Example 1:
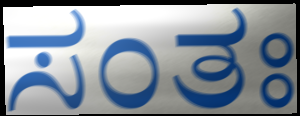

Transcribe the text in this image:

ಸಂತಃ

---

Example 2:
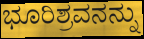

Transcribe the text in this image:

ಭೂರಿಶ್ರವನನ್ನು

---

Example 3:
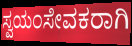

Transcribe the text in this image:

ಸ್ವಯಂಸೇವಕರಾಗಿ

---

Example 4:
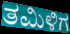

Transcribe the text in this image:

ತಮಿಳಿಗ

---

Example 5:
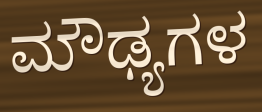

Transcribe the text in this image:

ಮೌಢ್ಯಗಳ